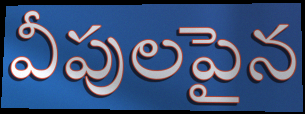
వీపులపైన